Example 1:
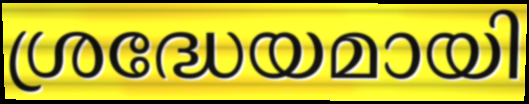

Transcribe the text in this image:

ശ്രദ്ധേയമായി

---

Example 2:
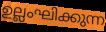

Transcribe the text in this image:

ഉല്ലംഘിക്കുന്ന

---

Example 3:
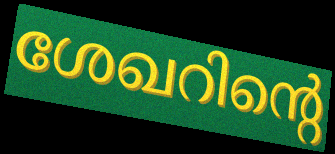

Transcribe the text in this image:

ശേഖറിന്റെ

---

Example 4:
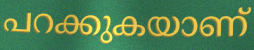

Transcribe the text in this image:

പറക്കുകയാണ്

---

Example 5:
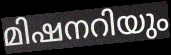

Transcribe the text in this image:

മിഷനറിയും